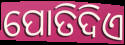
ପୋତିଦିଏ